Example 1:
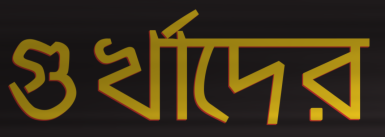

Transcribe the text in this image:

গুর্খাদের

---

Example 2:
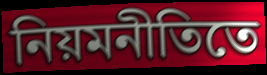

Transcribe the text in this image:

নিয়মনীতিতে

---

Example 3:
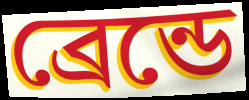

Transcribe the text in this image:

ব্রেন্ডে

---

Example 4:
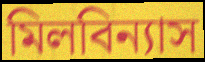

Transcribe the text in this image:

মিলবিন্যাস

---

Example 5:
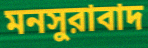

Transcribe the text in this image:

মনসুরাবাদ